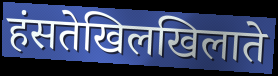
हंसतेखिलखिलाते